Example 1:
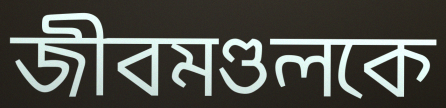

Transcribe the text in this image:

জীবমণ্ডলকে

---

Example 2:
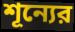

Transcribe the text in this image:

শূন্যের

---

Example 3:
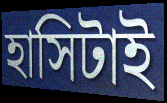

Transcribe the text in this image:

হাসিটাই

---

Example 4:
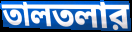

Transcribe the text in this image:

তালতলার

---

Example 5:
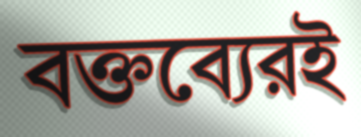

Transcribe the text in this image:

বক্তব্যেরই